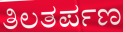
ತಿಲತರ್ಪಣ